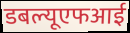
डबल्यूएफआई